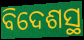
ବିଦେଶସ୍ଥ